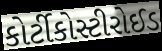
કોર્ટીકોસ્ટીરોઈડ